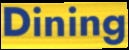
Dining